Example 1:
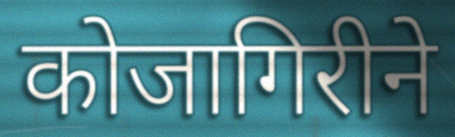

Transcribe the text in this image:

कोजागिरीने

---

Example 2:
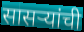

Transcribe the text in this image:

सासऱ्यांची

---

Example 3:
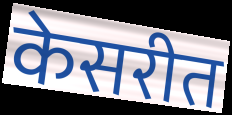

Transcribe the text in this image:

केसरीत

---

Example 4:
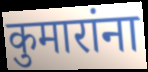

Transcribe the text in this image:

कुमारांना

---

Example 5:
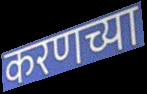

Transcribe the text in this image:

करणच्या